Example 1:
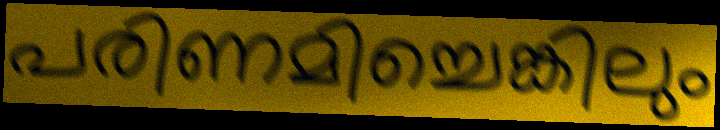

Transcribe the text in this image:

പരിണമിച്ചെങ്കിലും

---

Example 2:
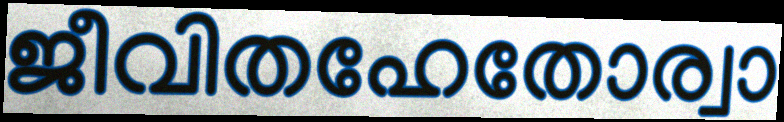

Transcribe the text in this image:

ജീവിതഹേതോര്വാ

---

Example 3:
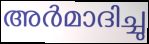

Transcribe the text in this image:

അർമാദിച്ചു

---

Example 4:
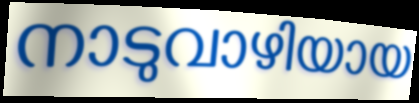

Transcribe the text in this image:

നാടുവാഴിയായ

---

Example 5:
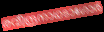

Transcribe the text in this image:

രവീന്ദ്രനാഥടാഗോർ